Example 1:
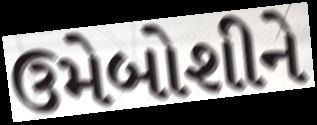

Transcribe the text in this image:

ઉમેબોશીને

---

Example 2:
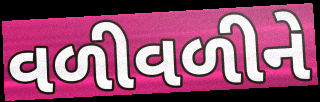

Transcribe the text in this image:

વળીવળીને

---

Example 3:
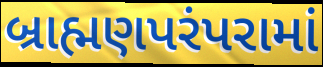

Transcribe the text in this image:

બ્રાહ્મણપરંપરામાં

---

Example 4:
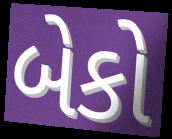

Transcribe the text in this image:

બેકો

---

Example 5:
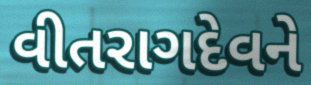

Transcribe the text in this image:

વીતરાગદેવને